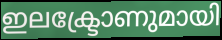
ഇലക്ട്രോണുമായി